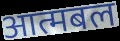
आत्मबल